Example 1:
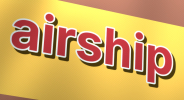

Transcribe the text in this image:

airship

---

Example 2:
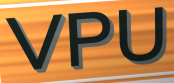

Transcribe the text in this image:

VPU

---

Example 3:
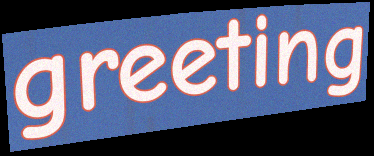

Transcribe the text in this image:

greeting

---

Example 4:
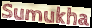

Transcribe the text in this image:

Sumukha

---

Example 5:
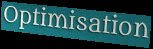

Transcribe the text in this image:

Optimisation